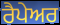
ਰੈਪੇਅਰ